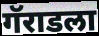
गॅराडला